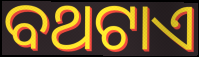
ବଥଟାଏ